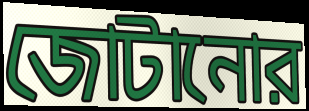
জোটানোর